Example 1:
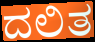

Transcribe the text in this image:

ದಲಿತ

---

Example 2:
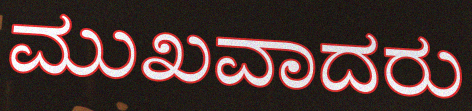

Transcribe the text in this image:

ಮುಖವಾದರು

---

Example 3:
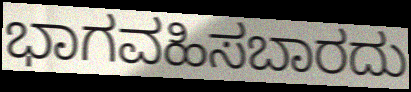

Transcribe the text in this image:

ಭಾಗವಹಿಸಬಾರದು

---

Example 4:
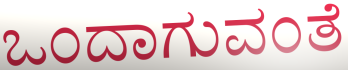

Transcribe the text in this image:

ಒಂದಾಗುವಂತೆ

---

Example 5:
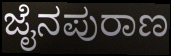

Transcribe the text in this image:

ಜೈನಪುರಾಣ